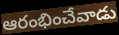
ఆరంభించేవాడు